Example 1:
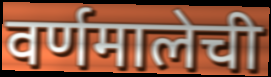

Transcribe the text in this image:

वर्णमालेची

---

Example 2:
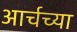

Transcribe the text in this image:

आर्चच्या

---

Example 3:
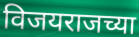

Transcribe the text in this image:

विजयराजच्या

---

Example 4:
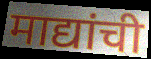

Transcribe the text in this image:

माद्यांची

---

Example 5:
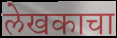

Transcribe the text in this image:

लेखकाचा